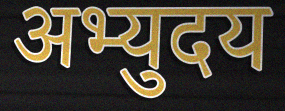
अभ्युदय